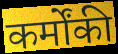
कर्मोंकी